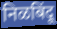
निळबिंदू